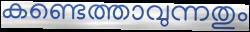
കണ്ടെത്താവുന്നതും